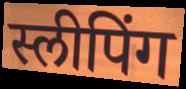
स्लीपिंग